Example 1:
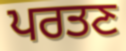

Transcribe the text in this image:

ਪਰਤਣ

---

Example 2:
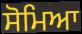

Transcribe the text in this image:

ਸੋਮਿਆ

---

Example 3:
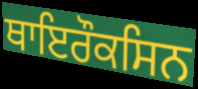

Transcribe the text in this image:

ਥਾਇਰੌਕਸਿਨ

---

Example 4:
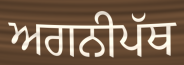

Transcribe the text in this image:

ਅਗਨੀਪੱਥ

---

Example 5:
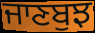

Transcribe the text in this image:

ਜਾਣਬੁਝ